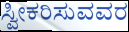
ಸ್ವೀಕರಿಸುವವರ